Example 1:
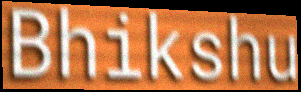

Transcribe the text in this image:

Bhikshu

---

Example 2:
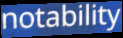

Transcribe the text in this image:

notability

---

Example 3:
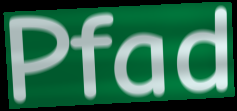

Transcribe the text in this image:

Pfad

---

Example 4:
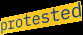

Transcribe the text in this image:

protested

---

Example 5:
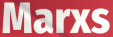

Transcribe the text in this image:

Marxs